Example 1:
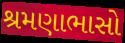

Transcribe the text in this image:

શ્રમણાભાસો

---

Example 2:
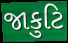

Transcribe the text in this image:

જાકુટિ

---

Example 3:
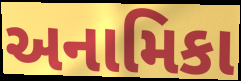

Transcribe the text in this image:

અનામિકા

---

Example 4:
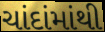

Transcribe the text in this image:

ચાંદાંમાંથી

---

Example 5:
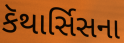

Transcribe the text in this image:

કૅથાર્સિસના